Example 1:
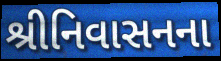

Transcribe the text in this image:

શ્રીનિવાસનના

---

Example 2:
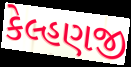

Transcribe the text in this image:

કેલ્હણજી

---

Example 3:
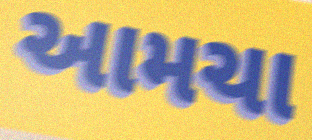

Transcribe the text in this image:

આમચા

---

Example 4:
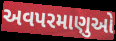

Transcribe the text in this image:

અવપરમાણુઓ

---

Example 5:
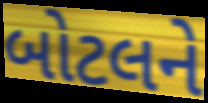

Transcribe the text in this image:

બોટલને